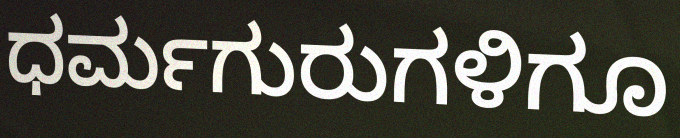
ಧರ್ಮಗುರುಗಳಿಗೂ